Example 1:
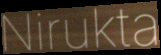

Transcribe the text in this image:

Nirukta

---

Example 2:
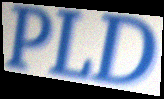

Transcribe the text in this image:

PLD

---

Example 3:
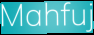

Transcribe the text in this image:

Mahfuj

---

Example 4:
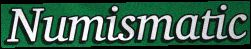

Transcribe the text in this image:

Numismatic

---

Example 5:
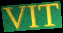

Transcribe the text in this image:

VIT